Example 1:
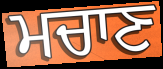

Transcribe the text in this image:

ਮਚਾਣ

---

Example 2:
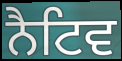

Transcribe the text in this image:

ਨੈਟਿਵ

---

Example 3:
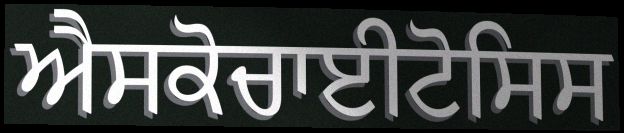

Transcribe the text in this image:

ਐਸਕੋਚਾਈਟੋਸਿਸ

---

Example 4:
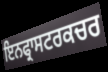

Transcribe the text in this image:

ਇਨਫ੍ਰਾਸਟਰਕਚਰ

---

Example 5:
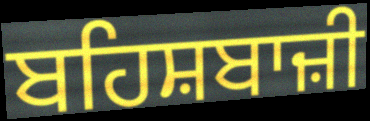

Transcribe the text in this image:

ਬਹਿਸ਼ਬਾਜ਼ੀ